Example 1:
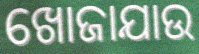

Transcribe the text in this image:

ଖୋଜାଯାଉ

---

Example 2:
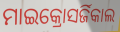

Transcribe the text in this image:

ମାଇକ୍ରୋସର୍ଜିକାଲ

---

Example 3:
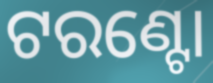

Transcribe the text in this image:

ଟରଣ୍ଟୋ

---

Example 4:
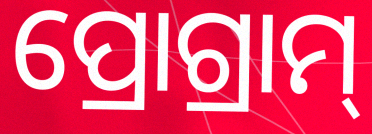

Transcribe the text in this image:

ପ୍ରୋଗ୍ରାମ୍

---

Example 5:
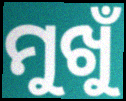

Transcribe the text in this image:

ମୁଖୁଁ